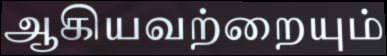
ஆகியவற்றையும்